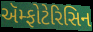
ઍમ્ફોટેરિસિન